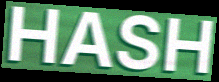
HASH